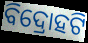
ବିଦ୍ରୋହଟି